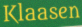
Klaasen